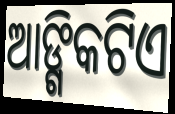
ଆଙ୍ଗିକଟିଏ